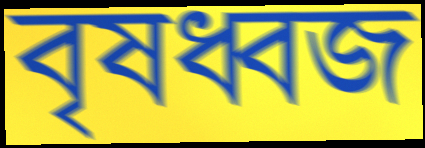
বৃষধ্বজ